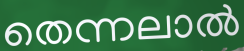
തെന്നലാൽ